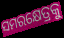
ସମରକ୍ଷେତ୍ରକୁ